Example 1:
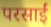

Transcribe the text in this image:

परसाईं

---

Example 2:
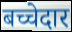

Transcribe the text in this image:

बच्चेदार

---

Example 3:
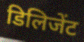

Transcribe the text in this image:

डिलिजेंट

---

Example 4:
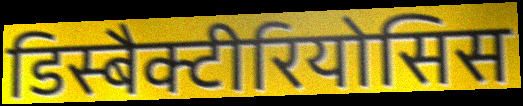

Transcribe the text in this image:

डिस्बैक्टीरियोसिस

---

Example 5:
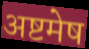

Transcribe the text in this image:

अष्टमेष